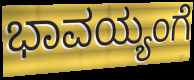
ಭಾವಯ್ಯಂಗೆ